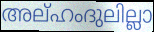
അല്ഹംദുലില്ലാ